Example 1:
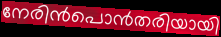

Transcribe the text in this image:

നേരിൻപൊൻതരിയായി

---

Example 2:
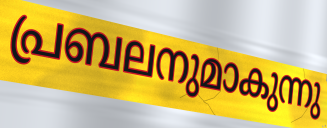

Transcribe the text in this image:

പ്രബലനുമാകുന്നു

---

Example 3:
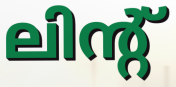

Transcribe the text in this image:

ലിന്റ്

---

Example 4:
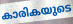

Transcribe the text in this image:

കാരികയുടെ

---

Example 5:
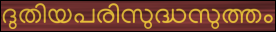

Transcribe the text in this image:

ദുതിയപരിസുദ്ധസുത്തം